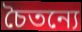
চৈতন্যে